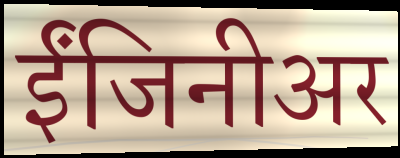
ईंजिनीअर